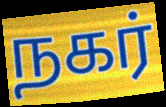
நகர்